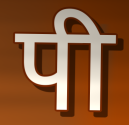
पी